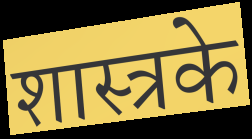
शास्त्रके